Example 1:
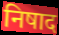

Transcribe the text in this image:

निषाद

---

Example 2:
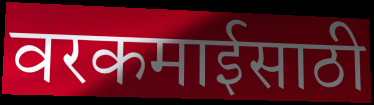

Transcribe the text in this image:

वरकमाईसाठी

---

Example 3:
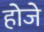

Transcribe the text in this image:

होजे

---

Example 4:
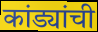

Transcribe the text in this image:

कांड्यांची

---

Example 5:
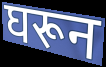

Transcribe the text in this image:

घरून